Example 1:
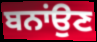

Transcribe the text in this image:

ਬਨਾਂਉਣ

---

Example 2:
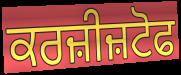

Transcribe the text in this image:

ਕਰਜ਼ੀਜ਼ਟੋਫ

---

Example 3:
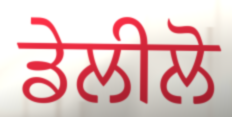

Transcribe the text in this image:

ਡੇਲੀਲੋ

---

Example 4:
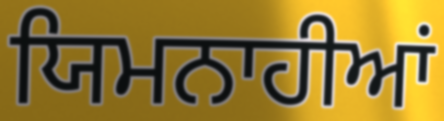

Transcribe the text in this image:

ਯਿਮਨਾਹੀਆਂ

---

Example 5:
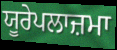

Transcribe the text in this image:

ਯੂਰੇਪਲਾਜ਼ਮਾ